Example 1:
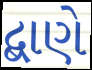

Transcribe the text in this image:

દ્બાણે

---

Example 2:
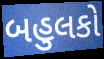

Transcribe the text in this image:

બહુલકો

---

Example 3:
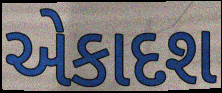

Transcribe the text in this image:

એકાદશ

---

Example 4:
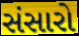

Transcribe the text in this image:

સંસારો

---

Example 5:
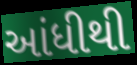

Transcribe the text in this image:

આંધીથી